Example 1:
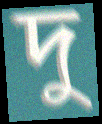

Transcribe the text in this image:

দু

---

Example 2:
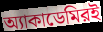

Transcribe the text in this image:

অ্যাকাডেমিরই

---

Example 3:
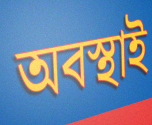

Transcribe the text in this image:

অবস্থাই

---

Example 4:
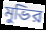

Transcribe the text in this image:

মুভির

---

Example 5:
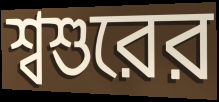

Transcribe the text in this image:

শ্বশুরের